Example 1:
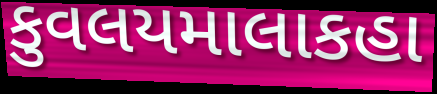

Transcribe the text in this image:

કુવલયમાલાકહા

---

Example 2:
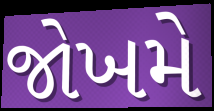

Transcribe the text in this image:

જોખમે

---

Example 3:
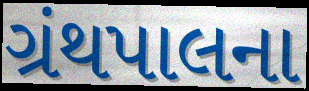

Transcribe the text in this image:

ગ્રંથપાલના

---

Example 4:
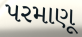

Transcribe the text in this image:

પરમાણૂ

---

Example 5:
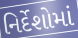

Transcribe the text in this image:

નિર્દેશોમાં